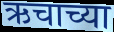
ऋचाच्या